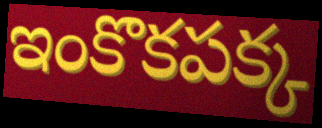
ఇంకొకపక్క